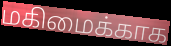
மகிமைக்காக